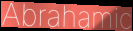
Abrahamic